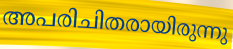
അപരിചിതരായിരുന്നു